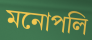
মনোপলি